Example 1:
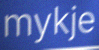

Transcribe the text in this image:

mykje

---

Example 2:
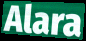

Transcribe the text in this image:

Alara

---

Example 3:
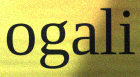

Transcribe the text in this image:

ogali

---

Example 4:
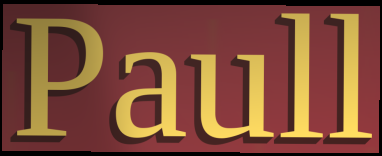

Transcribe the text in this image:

Paull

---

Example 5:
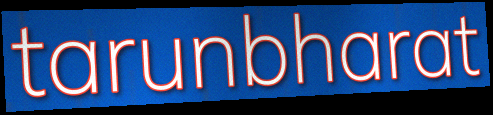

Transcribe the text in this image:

tarunbharat